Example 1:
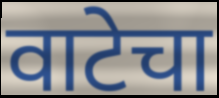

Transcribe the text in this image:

वाटेचा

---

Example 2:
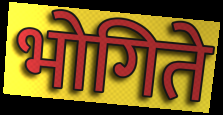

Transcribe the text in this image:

भोगिते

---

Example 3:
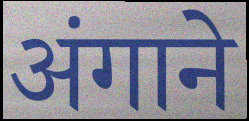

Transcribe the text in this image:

अंगाने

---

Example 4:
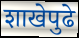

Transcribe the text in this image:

शाखेपुढे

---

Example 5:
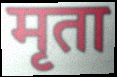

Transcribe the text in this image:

मृता